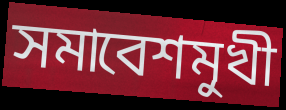
সমাবেশমুখী